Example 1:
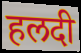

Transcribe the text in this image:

हलदी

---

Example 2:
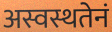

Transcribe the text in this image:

अस्वस्थतेनं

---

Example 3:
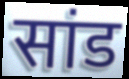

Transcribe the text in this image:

सांड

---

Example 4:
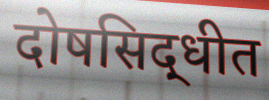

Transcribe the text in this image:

दोषसिद्धीत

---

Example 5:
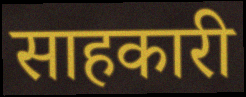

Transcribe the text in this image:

साहकारी